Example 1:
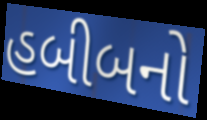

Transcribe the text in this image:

હબીબનો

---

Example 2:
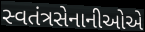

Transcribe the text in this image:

સ્વતંત્રસેનાનીઓએ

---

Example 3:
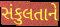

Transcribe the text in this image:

સંકુલતાને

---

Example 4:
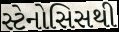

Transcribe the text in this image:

સ્ટેનોસિસથી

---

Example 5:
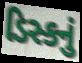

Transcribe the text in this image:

ડિસ્કનું